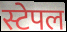
स्टेपल